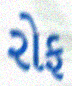
રોફ